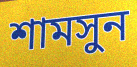
শামসুন